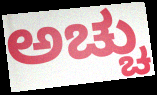
ಅಚ್ಚು